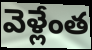
వెళ్లేంత